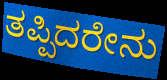
ತಪ್ಪಿದರೇನು